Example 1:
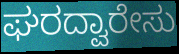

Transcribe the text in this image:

ಘರದ್ವಾರೇಸು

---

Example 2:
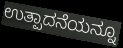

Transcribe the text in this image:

ಉತ್ಪಾದನೆಯನ್ನೂ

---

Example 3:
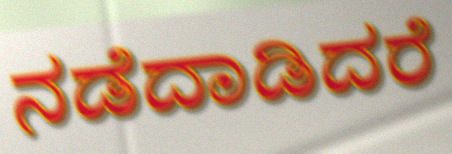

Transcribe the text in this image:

ನಡೆದಾಡಿದರೆ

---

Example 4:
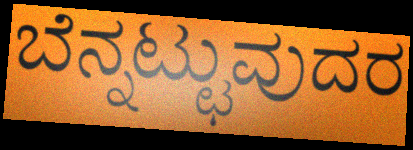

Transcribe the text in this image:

ಬೆನ್ನಟ್ಟುವುದರ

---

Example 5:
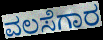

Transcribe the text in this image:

ವಲಸೆಗಾರ